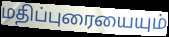
மதிப்புரையையும்